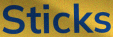
Sticks